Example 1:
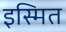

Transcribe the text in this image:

इस्मित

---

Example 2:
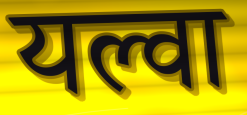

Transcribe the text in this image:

यल्वा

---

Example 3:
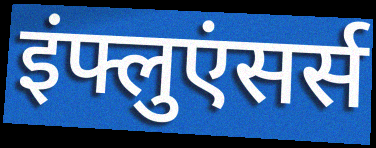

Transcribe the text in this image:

इंफ्लुएंसर्स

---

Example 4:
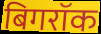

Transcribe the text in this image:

बिगरॉक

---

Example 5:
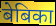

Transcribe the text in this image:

बेबिका